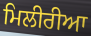
ਮਿਲੀਰੀਆ